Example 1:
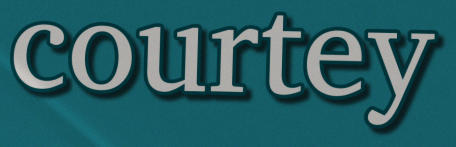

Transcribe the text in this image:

courtey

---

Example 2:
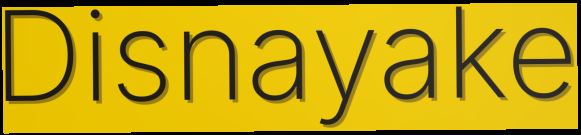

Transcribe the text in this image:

Disnayake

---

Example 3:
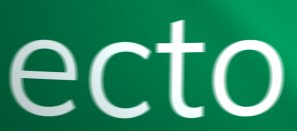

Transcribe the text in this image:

ecto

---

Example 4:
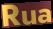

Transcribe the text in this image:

Rua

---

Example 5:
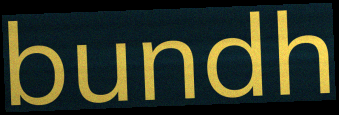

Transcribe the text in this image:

bundh